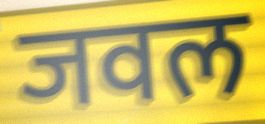
जवल